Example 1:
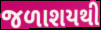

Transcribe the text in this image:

જળાશયથી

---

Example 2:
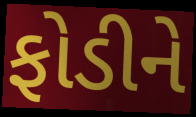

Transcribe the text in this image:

ફોડીને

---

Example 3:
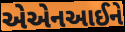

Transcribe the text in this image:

એએનઆઈને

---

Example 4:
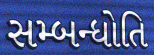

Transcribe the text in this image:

સમ્બન્ધોતિ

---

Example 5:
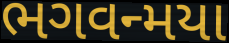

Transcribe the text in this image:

ભગવન્મયા